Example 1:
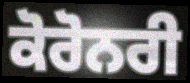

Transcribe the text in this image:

ਕੋਰੋਨਰੀ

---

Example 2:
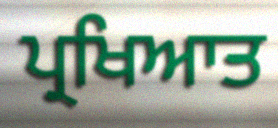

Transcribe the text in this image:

ਪ੍ਰਖਿਆਤ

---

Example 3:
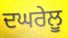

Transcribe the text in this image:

ਦਘਰੇਲੂ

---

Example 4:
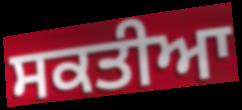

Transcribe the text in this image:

ਸਕਤੀਆ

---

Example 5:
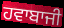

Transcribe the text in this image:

ਹਵਾਬਾਜੀ